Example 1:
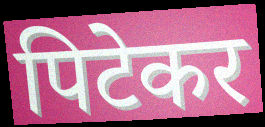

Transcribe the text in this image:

पिटेकर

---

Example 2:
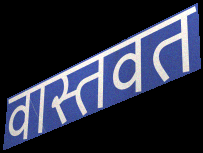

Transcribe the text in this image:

वास्‍तवत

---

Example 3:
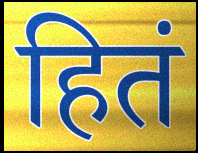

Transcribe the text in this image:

हितं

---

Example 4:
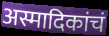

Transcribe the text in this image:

अस्मादिकांचं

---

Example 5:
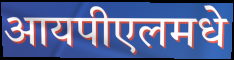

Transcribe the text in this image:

आयपीएलमधे